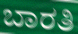
ಬಾರತಿ